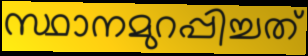
സ്ഥാനമുറപ്പിച്ചത്